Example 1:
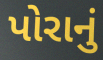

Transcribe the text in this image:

પોરાનું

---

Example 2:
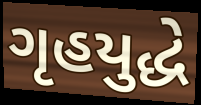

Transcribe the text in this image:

ગૃહયુદ્ધે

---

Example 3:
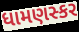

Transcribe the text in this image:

ધામણસ્કર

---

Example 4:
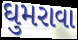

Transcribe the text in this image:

ઘુમરાવા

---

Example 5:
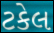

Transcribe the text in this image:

ટકેલ